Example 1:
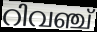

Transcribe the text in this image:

റിവഞ്ച്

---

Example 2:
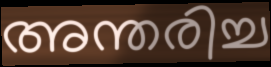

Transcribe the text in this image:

അന്തരിച്ച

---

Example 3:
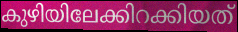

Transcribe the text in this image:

കുഴിയിലേക്കിറക്കിയത്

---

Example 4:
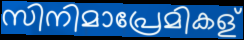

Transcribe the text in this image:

സിനിമാപ്രേമികള്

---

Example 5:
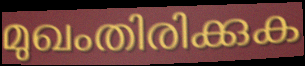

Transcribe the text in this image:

മുഖംതിരിക്കുക